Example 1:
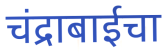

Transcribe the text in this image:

चंद्राबाईचा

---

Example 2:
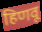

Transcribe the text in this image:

हिणवू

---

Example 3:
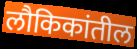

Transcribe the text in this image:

लौकिकांतील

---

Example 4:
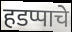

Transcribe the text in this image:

हडप्पाचे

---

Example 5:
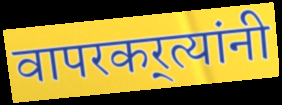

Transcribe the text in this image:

वापरकर्त्यांनी